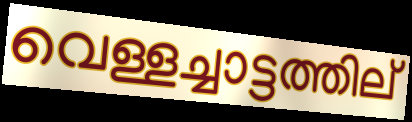
വെള്ളച്ചാട്ടത്തില്